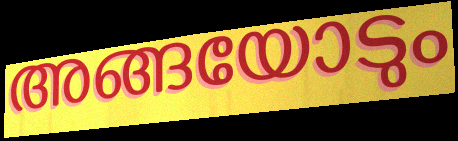
അങ്ങയോടും